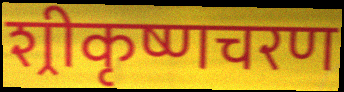
श्रीकृष्णचरण